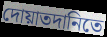
দোয়াতদানিতে